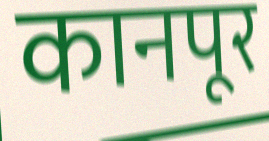
कानपूर